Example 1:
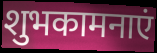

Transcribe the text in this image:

शुभकामनाएं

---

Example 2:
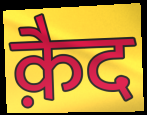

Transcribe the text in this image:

क़ैद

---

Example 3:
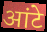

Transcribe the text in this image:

आंटे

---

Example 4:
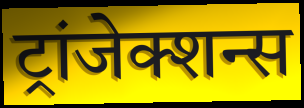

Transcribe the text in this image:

ट्रांजेक्शन्स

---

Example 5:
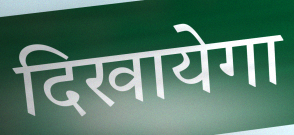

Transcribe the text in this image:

दिखायेगा